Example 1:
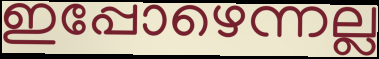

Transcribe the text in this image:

ഇപ്പോഴെന്നല്ല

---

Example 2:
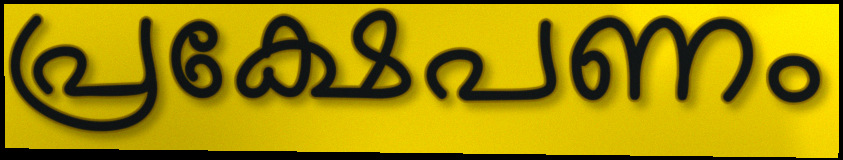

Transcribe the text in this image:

പ്രക്ഷേപണം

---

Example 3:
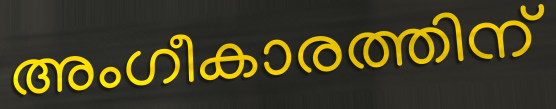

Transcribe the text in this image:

അംഗീകാരത്തിന്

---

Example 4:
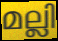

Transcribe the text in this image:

മല്ലി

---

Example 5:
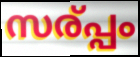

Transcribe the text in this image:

സര്പ്പം